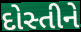
દોસ્તીને